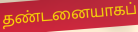
தண்டனையாகப்